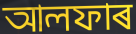
আলফাৰ